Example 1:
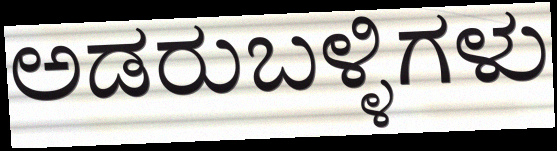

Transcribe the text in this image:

ಅಡರುಬಳ್ಳಿಗಳು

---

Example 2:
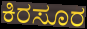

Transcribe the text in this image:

ಕಿರಸೂರ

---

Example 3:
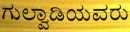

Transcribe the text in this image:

ಗುಲ್ವಾಡಿಯವರು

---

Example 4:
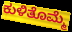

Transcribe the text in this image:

ಕುಳಿತೊಮ್ಮೆ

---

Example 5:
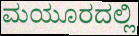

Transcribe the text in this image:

ಮಯೂರದಲ್ಲಿ